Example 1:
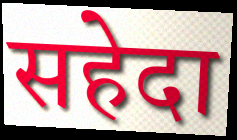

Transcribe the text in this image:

सहेदा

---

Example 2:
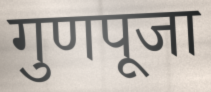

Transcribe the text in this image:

गुणपूजा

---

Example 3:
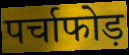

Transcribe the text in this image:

पर्चाफोड़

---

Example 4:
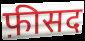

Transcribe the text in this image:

फ़ीसद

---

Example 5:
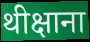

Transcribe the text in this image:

थीक्षाना